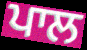
ਪਾਲ